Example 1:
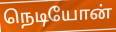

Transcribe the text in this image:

நெடியோன்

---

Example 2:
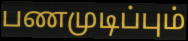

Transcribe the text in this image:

பணமுடிப்பும்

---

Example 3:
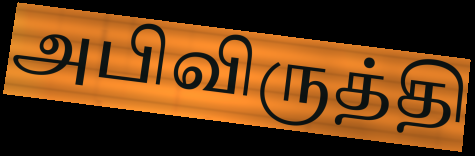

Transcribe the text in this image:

அபிவிருத்தி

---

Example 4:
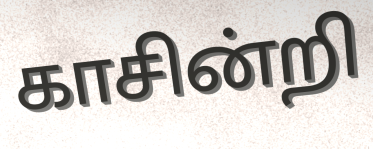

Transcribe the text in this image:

காசின்றி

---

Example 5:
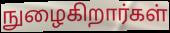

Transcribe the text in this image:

நுழைகிறார்கள்